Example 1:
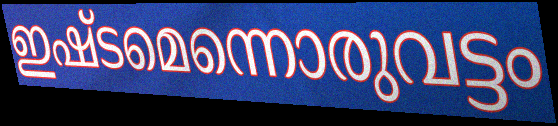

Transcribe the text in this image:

ഇഷ്ടമെന്നൊരുവട്ടം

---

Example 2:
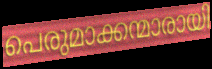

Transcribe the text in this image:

പെരുമാക്കന്മാരായി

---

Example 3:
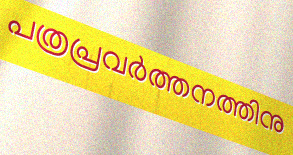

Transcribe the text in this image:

പത്രപ്രവർത്തനത്തിനു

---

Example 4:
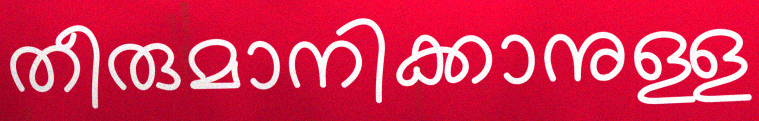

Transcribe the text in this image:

തീരുമാനിക്കാനുള്ള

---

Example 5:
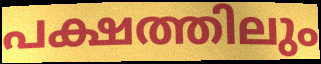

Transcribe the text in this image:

പക്ഷത്തിലും